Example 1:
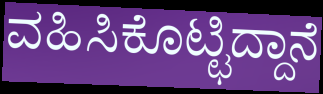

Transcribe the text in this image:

ವಹಿಸಿಕೊಟ್ಟಿದ್ದಾನೆ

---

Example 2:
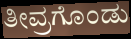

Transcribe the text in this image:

ತೀವ್ರಗೊಂಡು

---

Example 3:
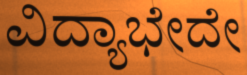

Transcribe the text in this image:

ವಿದ್ಯಾಭೇದೇ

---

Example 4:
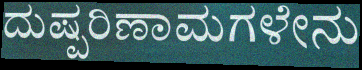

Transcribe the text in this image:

ದುಷ್ಪರಿಣಾಮಗಳೇನು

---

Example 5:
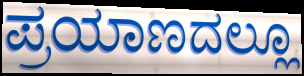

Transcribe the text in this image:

ಪ್ರಯಾಣದಲ್ಲೂ